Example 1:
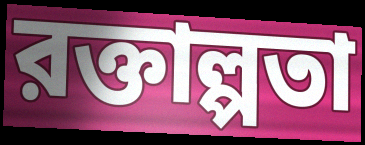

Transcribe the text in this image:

রক্তাল্পতা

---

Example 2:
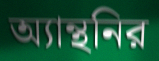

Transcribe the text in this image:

অ্যান্থনির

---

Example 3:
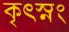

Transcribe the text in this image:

কৃৎস্নং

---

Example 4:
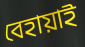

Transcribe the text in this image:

বেহায়াই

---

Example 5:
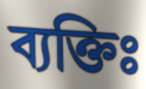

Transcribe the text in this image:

ব্যক্তিঃ